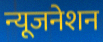
न्यूजनेशन